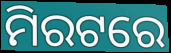
ମିରଟରେ